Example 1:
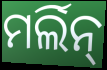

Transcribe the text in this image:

ମର୍ଲିନ୍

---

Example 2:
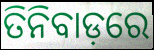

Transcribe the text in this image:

ତିନିବାଡ଼ରେ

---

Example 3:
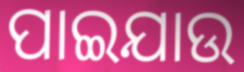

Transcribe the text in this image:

ପାଇଯାଉ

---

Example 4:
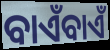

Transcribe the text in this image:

ବାଏଁବାଏଁ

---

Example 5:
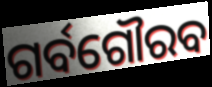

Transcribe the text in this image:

ଗର୍ବଗୌରବ